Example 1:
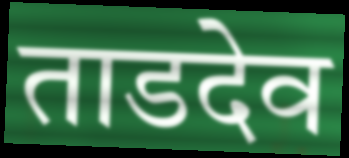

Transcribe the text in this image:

ताडदेव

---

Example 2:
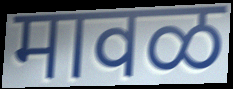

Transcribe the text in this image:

मावळ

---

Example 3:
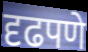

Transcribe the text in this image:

दृढपणे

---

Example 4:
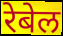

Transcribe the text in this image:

रेबेल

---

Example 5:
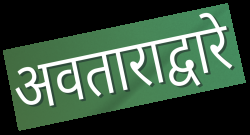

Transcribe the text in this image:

अवताराद्वारे